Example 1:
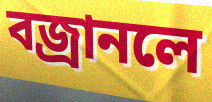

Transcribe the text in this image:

বজ্রানলে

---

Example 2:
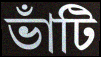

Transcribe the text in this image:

ভাঁটি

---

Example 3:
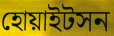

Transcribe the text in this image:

হোয়াইটসন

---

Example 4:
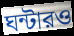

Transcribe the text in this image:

ঘন্টারও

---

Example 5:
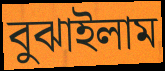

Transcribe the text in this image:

বুঝাইলাম